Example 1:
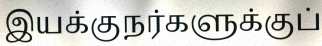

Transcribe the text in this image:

இயக்குநர்களுக்குப்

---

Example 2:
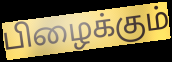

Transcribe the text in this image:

பிழைக்கும்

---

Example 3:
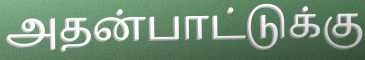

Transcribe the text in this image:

அதன்பாட்டுக்கு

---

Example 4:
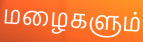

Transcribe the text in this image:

மழைகளும்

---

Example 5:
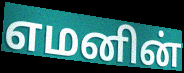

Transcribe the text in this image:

எமனின்